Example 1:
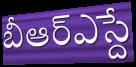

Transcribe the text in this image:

బీఆర్ఎస్దే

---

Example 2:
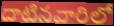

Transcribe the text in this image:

దాటినవారిలో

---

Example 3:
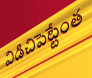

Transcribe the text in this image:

విడిచిపెట్టేంత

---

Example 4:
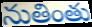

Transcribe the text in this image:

నుతింతు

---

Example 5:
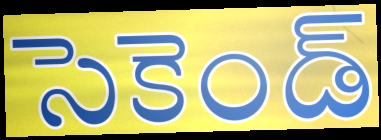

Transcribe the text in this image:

సెకెండ్